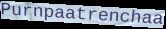
Purnpaatrenchaa